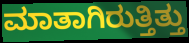
ಮಾತಾಗಿರುತ್ತಿತ್ತು